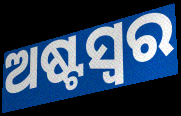
ଅଷ୍ଟସ୍ୱର